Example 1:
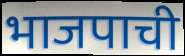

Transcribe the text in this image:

भाजपाची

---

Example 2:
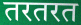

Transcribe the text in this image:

तरतरत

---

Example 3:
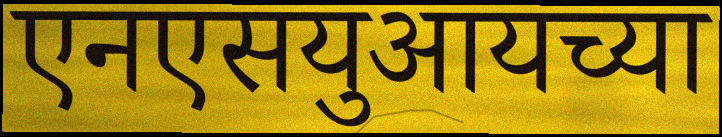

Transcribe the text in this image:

एनएसयुआयच्या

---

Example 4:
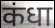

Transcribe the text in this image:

कंधा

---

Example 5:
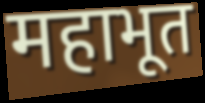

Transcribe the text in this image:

महाभूत